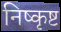
निष्कृष्ट